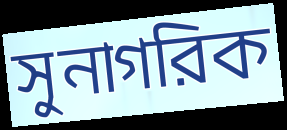
সুনাগরিক